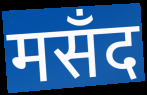
मसँद